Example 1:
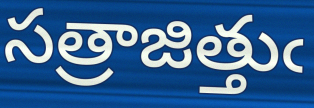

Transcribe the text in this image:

సత్రాజిత్తుఁ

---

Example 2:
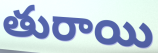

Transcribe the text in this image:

తురాయి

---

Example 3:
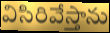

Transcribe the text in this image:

విసిరివేస్తాను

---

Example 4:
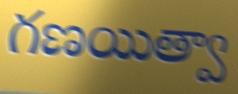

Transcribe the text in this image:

గణయిత్వా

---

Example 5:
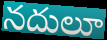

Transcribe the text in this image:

నదులూ